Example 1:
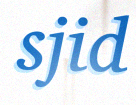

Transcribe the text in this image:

sjid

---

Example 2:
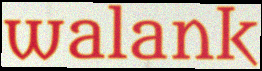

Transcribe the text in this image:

walank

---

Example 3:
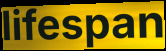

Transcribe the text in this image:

lifespan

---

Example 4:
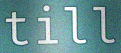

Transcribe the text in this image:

till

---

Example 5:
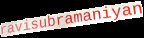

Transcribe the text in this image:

ravisubramaniyan